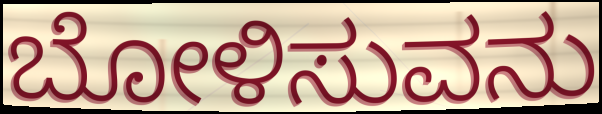
ಬೋಳಿಸುವನು